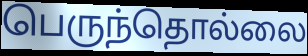
பெருந்தொல்லை